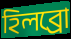
হিলব্রো